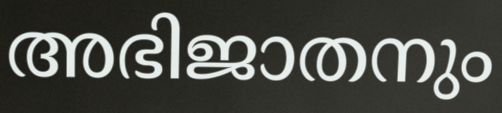
അഭിജാതനും